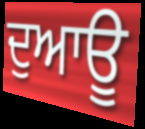
ਦੁਆਊ